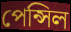
পেন্সিল